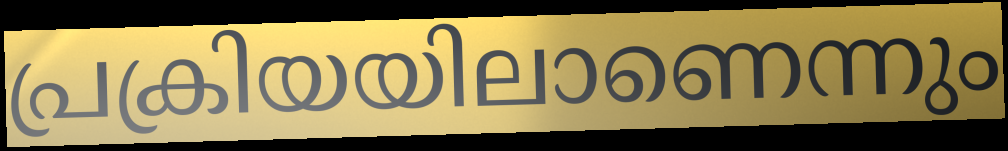
പ്രക്രിയയിലാണെന്നും